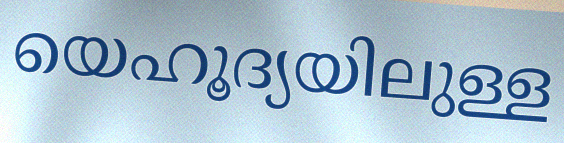
യെഹൂദ്യയിലുള്ള